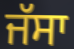
ਜੱਸਾ